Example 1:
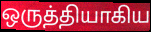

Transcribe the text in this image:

ஒருத்தியாகிய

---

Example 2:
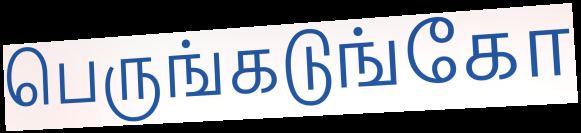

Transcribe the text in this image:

பெருங்கடுங்கோ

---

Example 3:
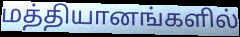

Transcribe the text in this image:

மத்தியானங்களில்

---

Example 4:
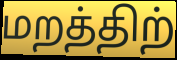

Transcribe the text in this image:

மறத்திற்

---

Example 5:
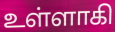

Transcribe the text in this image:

உள்ளாகி